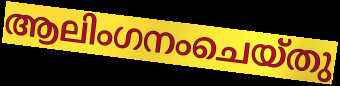
ആലിംഗനംചെയ്തു